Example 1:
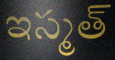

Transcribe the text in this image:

ఇస్మత్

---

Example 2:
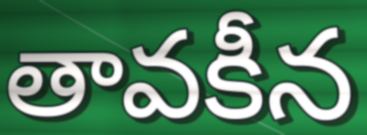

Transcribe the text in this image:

తావకీన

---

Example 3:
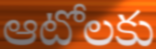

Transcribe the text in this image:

ఆటోలకు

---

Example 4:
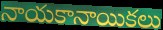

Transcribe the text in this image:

నాయకానాయికలు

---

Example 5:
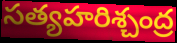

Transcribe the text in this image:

సత్యహరిశ్చంద్ర